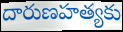
దారుణహత్యకు